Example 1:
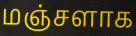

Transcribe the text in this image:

மஞ்சளாக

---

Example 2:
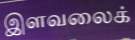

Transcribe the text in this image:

இளவலைக்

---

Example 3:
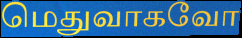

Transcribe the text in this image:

மெதுவாகவோ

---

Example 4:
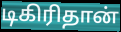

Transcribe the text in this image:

டிகிரிதான்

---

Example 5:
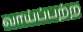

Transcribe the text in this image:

வாய்ப்பற்ற